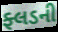
ફ્લડની